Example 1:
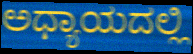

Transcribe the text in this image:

ಅಧ್ಯಾಯದಲ್ಲಿ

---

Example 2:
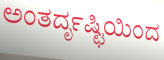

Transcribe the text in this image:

ಅಂತರ್ದೃಷ್ಟಿಯಿಂದ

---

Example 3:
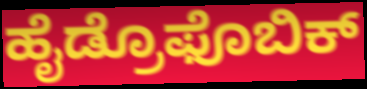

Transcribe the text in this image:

ಹೈಡ್ರೊಫೊಬಿಕ್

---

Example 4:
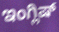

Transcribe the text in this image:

ಇಂಗ್ಲಿಷ್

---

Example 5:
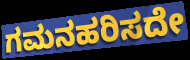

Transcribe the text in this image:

ಗಮನಹರಿಸದೇ